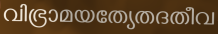
വിഭ്രാമയത്യേതദതീവ